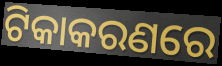
ଟିକାକରଣରେ